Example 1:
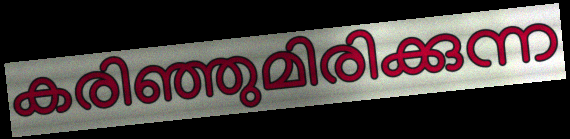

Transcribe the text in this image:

കരിഞ്ഞുമിരിക്കുന്ന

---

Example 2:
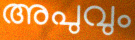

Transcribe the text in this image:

അപുവും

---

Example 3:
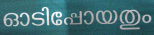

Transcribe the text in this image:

ഓടിപ്പോയതും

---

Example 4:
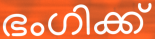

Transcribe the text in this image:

ഭംഗിക്ക്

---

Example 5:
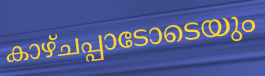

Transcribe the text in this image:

കാഴ്ചപ്പാടോടെയും